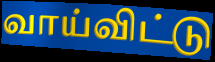
வாய்விட்டு